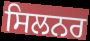
ਸਿਲਨਰ